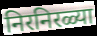
निरनिरळ्या